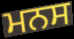
ਮਨਸ